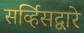
सर्व्हिसद्वारे